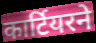
कार्टियरने